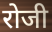
रोजी